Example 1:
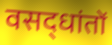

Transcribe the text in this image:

वसद्धांतों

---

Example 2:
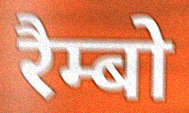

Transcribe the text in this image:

रैम्बो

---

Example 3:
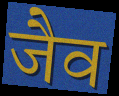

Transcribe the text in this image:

जैव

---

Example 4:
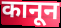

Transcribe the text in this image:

कानून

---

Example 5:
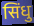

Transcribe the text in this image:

सिंधु